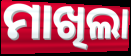
ମାଖିଲା